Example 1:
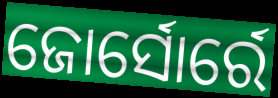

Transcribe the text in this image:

ଜୋର୍ସୋର୍ରେ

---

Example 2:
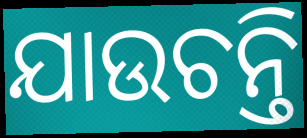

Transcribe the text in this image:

ଯାଉଚନ୍ତି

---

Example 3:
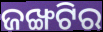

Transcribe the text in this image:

ଜଙ୍ଖଟିର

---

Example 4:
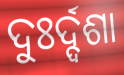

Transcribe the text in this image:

ଦୁଃର୍ଦ୍ଦଶା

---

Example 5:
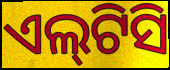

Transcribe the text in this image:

ଏଲ୍‌ଟିସି